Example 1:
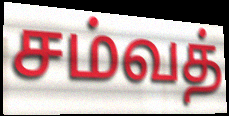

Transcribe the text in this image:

சம்வத்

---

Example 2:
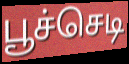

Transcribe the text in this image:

பூச்செடி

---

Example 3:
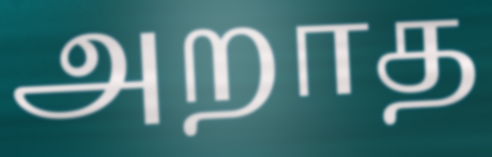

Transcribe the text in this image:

அறாத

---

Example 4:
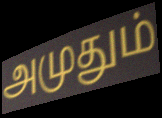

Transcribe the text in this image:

அமுதும்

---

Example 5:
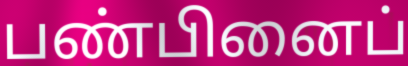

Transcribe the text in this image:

பண்பினைப்